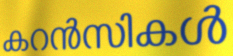
കറൻസികൾ